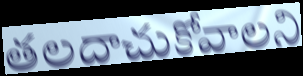
తలదాచుకోవాలని